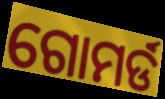
ଗୋମର୍ଡ